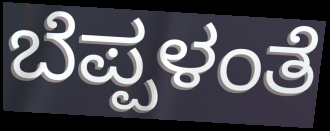
ಬೆಪ್ಪಳಂತೆ